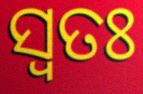
ସ୍ଵତଃ